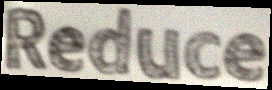
Reduce